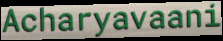
Acharyavaani